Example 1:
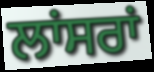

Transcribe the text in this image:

ਲਾਂਸਰਾਂ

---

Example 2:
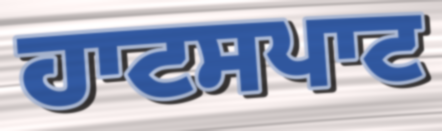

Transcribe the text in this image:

ਹਾਟਸਪਾਟ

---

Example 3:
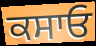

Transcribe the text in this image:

ਕਸਾਓ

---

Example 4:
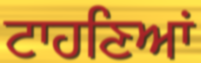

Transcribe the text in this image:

ਟਾਹਣਿਆਂ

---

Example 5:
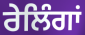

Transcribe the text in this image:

ਰੇਲਿੰਗਾਂ